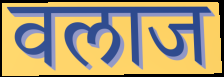
वलाज